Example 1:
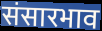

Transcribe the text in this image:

संसारभाव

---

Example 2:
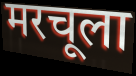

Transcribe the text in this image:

मरचूला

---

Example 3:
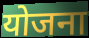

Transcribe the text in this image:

योजना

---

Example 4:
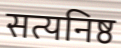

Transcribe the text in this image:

सत्यनिष्ठ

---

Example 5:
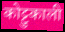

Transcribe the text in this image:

कोट्टुकाली